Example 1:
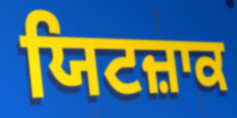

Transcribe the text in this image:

ਯਿਟਜ਼ਾਕ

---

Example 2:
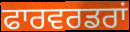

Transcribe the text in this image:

ਫਾਰਵਰਡਰਾਂ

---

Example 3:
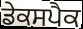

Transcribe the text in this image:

ਡੇਕਸਪੈਕ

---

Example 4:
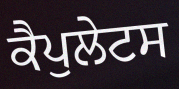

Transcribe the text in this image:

ਕੈਪੁਲੇਟਸ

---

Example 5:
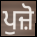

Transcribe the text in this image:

ਪੁਜ਼ੋ